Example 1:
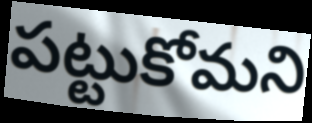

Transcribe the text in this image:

పట్టుకోమని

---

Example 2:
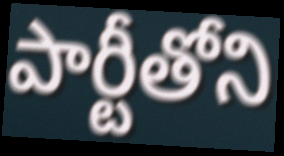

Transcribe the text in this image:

పార్టీతోని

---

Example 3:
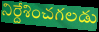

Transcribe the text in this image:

నిర్దేశించగలడు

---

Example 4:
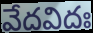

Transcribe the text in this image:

వేదవిదః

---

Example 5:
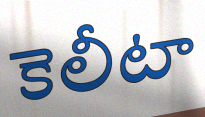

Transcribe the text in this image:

కెలీటా